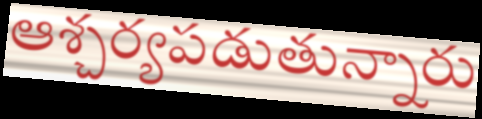
ఆశ్చర్యపడుతున్నారు